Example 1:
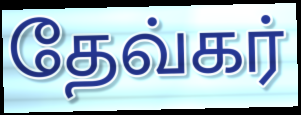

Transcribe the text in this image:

தேவ்கர்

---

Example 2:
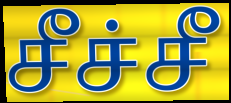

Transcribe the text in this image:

சீச்சீ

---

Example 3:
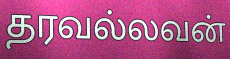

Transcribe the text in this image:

தரவல்லவன்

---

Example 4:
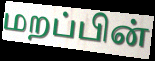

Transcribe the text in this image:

மறப்பின்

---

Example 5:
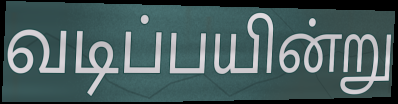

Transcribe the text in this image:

வடிப்பயின்று